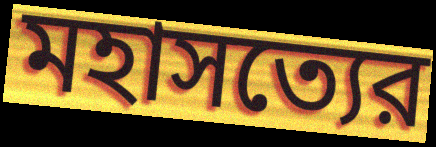
মহাসত্যের